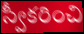
స్వీకరించి